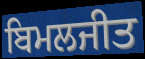
ਬਿਮਲਜੀਤ